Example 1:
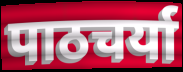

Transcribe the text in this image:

पाठचर्या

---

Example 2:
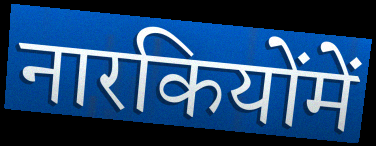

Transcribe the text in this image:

नारकियोंमें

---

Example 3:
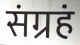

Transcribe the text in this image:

संग्रहं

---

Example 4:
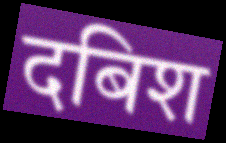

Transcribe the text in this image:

दबिश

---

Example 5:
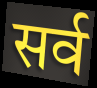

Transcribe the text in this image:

सर्व